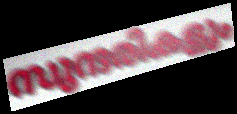
സുന്ദരികളും